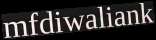
mfdiwaliank